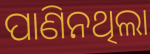
ପାଣିନଥିଲା